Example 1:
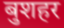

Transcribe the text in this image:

बुशहर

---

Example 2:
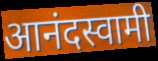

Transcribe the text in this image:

आनंदस्वामी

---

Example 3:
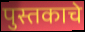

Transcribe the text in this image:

पुस्तकाचे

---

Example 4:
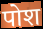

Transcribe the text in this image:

पोश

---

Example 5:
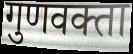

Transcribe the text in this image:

गुणवक्ता